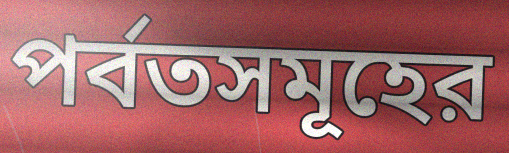
পর্বতসমূহের